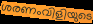
ശരണംവിളിയുടെ